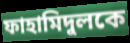
ফাহামিদুলকে